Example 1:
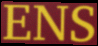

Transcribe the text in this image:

ENS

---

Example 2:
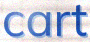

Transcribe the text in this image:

cart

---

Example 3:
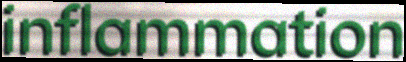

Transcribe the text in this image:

inflammation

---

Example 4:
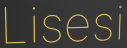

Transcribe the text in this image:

Lisesi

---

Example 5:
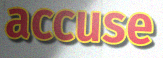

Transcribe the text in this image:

accuse